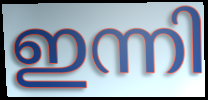
ഇന്നി